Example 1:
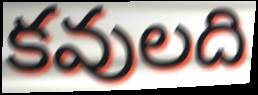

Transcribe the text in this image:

కవులది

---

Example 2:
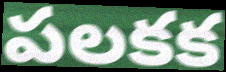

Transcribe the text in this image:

పలకక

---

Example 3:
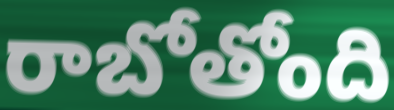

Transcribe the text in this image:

రాబోతోంది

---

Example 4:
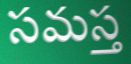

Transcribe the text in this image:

సమస్త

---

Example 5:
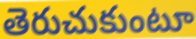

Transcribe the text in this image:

తెరుచుకుంటూ